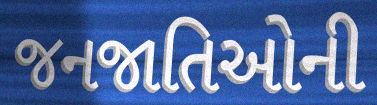
જનજાતિઓની